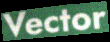
Vector